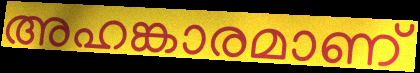
അഹങ്കാരമാണ്